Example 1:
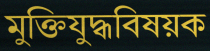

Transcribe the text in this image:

মুক্তিযুদ্ধবিষয়ক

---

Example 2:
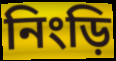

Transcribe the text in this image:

নিংড়ি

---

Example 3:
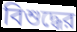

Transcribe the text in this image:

বিশুদ্ধের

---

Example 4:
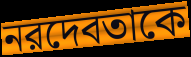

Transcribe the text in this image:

নরদেবতাকে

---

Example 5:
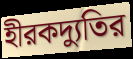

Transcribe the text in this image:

হীরকদ্যুতির